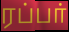
ரப்பர்